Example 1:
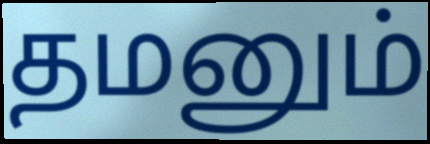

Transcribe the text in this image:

தமனும்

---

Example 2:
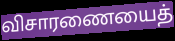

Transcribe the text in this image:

விசாரணையைத்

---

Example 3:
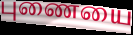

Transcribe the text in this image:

புணையை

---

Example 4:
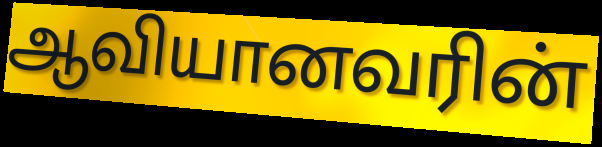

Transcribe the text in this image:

ஆவியானவரின்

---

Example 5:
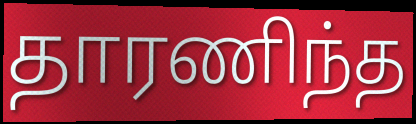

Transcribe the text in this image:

தாரணிந்த